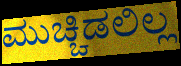
ಮುಚ್ಚಿಡಲಿಲ್ಲ